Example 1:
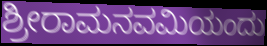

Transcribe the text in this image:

ಶ್ರೀರಾಮನವಮಿಯಂದು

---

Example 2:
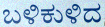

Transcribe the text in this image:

ಬಳಿಕುಳಿದ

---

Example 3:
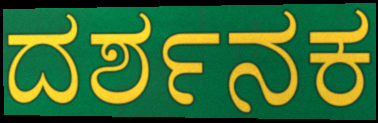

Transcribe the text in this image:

ದರ್ಶನಕ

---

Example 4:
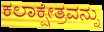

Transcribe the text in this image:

ಕಲಾಕ್ಷೇತ್ರವನ್ನು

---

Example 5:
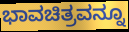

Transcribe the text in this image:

ಭಾವಚಿತ್ರವನ್ನೂ